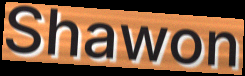
Shawon